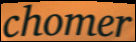
chomer